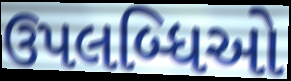
ઉપલબ્ધિઓ